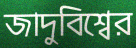
জাদুবিশ্বের